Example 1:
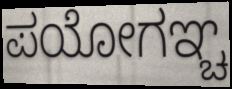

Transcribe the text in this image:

ಪಯೋಗಞ್ಚ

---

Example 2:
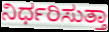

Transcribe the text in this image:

ನಿರ್ಧರಿಸುತ್ತಾ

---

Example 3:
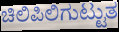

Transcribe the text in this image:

ಚಿಲಿಪಿಲಿಗುಟ್ಟುತ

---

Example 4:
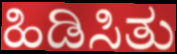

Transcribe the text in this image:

ಹಿಡಿಸಿತು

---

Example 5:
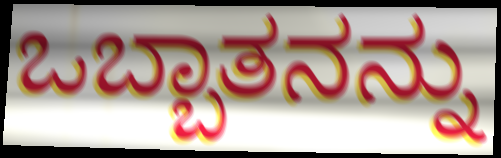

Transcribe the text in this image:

ಒಬ್ಬಾತನನ್ನು